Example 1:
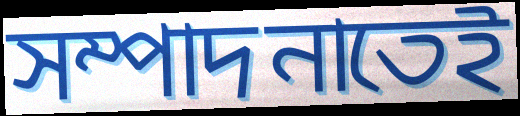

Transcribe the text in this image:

সম্পাদনাতেই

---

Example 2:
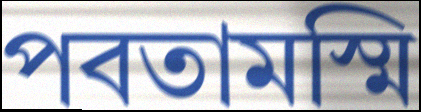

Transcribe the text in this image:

পবতামস্মি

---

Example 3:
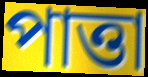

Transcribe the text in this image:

পাত্তা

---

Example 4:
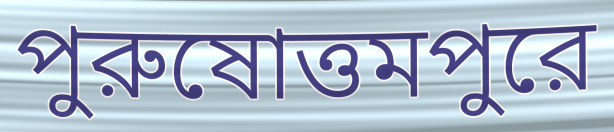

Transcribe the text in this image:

পুরুষোত্তমপুরে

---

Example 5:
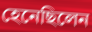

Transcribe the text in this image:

হেনেছিলেন